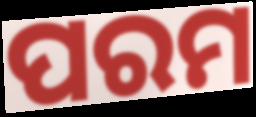
ପରମ